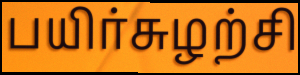
பயிர்சுழற்சி